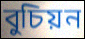
বুচিয়ন